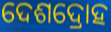
ଦେଶଦ୍ରୋହ